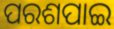
ପରଶପାଇ